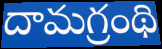
దామగ్రంథి